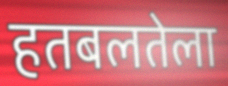
हतबलतेला